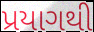
પ્રયાગથી